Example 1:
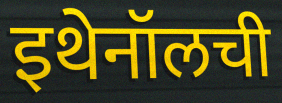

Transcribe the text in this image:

इथेनॉलची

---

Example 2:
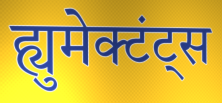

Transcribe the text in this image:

ह्युमेक्टंट्स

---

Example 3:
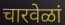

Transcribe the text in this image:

चारवेळां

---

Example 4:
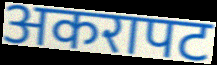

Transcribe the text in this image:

अकरापट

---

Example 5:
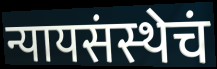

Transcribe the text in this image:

न्यायसंस्थेचं